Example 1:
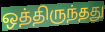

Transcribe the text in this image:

ஒத்திருந்தது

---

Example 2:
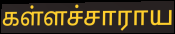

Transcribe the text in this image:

கள்ளச்சாராய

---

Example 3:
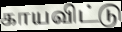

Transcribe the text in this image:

காயவிட்டு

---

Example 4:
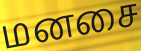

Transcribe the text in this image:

மனசை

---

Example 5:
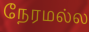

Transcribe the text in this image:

நேரமல்ல